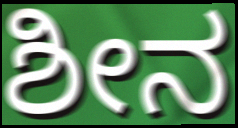
ಶೀನ